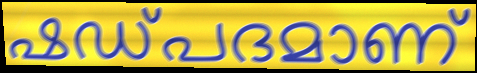
ഷഡ്പദമാണ്